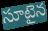
సూటైన